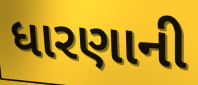
ધારણાની